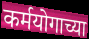
कर्मयोगाच्या